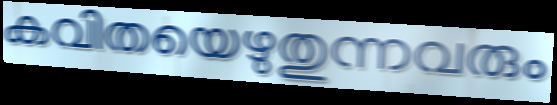
കവിതയെഴുതുന്നവരും